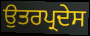
ਉਤਰਪ੍ਰਦੇਸ